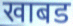
खाबड